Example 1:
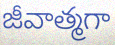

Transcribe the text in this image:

జీవాత్మగా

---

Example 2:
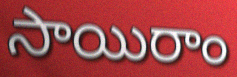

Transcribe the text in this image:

సాయిరాం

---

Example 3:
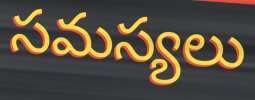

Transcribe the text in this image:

సమస్యలు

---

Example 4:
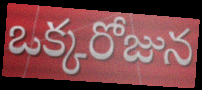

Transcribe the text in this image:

ఒక్కరోజున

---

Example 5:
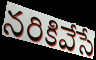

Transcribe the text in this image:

నరికివేసే